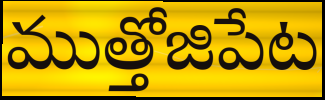
ముత్తోజిపేట